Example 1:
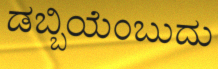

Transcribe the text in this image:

ಡಬ್ಬಿಯೆಂಬುದು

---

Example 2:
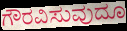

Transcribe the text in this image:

ಗೌರವಿಸುವುದೂ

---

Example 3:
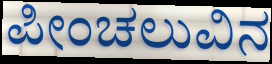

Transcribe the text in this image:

ಪೀಂಚಲುವಿನ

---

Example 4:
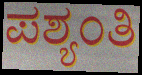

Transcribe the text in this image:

ಪಶ್ಯಂತಿ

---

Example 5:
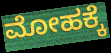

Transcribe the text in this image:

ಮೋಹಕ್ಕೆ